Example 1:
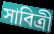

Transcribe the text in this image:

সাবিত্ৰী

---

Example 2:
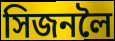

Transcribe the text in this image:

সিজনলৈ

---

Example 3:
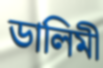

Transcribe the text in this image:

ডালিমী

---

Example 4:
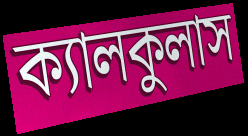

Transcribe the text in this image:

ক্যালকুলাস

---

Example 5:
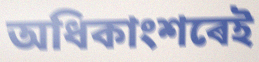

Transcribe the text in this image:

অধিকাংশৰেই